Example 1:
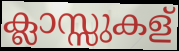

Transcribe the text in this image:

ക്ലാസ്സുകള്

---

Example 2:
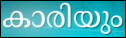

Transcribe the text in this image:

കാരിയും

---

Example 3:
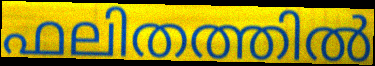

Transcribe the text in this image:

ഫലിതത്തിൽ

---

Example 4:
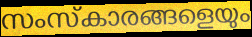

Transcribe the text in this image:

സംസ്‌കാരങ്ങളെയും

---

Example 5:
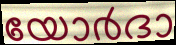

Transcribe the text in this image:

യോർദാ